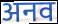
अनव